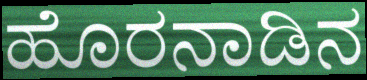
ಹೊರನಾಡಿನ